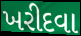
ખરીદવા